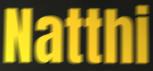
Natthi